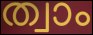
ത്വാം